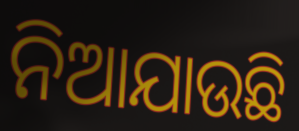
ନିଆଯାଉଛି